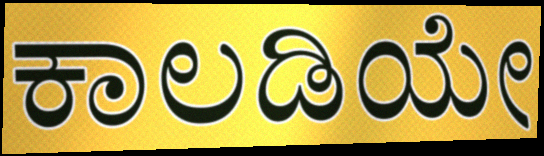
ಕಾಲಡಿಯೇ